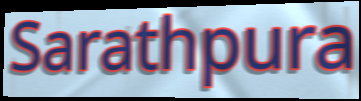
Sarathpura